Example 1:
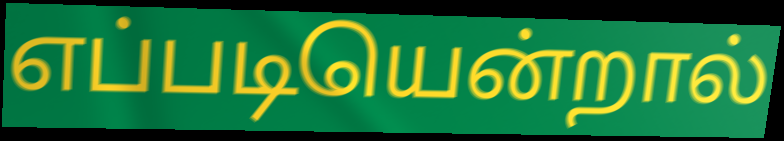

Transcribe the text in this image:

எப்படியென்றால்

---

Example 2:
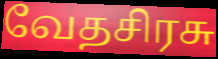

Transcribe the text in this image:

வேதசிரசு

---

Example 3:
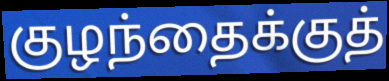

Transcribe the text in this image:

குழந்தைக்குத்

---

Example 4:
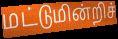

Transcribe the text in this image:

மட்டுமின்றிச்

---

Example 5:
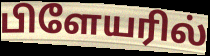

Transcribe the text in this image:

பிளேயரில்